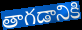
తాగడానికి